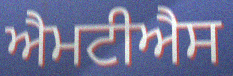
ਐਮਟੀਐਸ